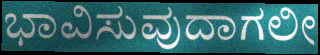
ಭಾವಿಸುವುದಾಗಲೀ